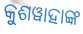
କୁଶୱାହାଙ୍କ